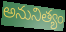
అనునిత్యం